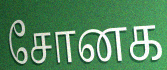
சோனக